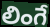
లింగే